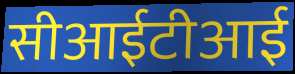
सीआईटीआई